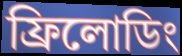
ফ্রিলোডিং